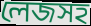
লেজসহ